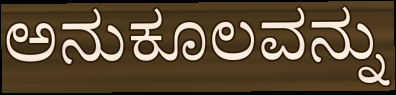
ಅನುಕೂಲವನ್ನು